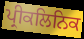
ਪ੍ਰੀਕਲਿਨਿਕ